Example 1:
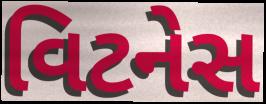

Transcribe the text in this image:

વિટનેસ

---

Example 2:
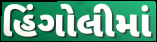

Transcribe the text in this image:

હિંગોલીમાં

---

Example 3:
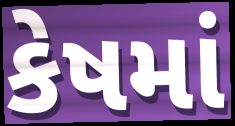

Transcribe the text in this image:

કેષમાં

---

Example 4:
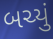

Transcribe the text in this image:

બચ્યું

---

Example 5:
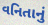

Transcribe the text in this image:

વનિતાનું